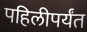
पहिलीपर्यंत